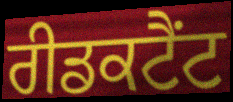
ਰੀਡਕਟੈਂਟ